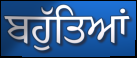
ਬਹੁੱਤਿਆਂ